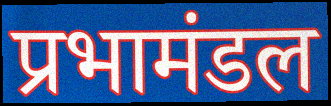
प्रभामंडल